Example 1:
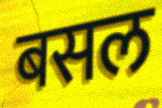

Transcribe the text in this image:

बसल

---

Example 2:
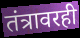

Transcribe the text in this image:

तंत्रावरही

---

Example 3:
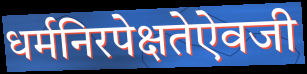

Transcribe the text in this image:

धर्मनिरपेक्षतेऐवजी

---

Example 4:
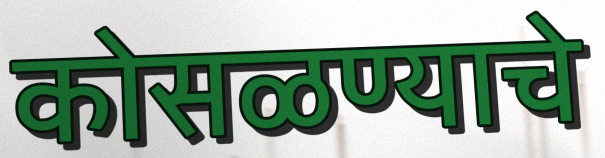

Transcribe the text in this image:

कोसळण्याचे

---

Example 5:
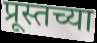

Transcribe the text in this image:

प्रूस्तच्या